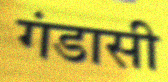
गंडासी